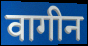
वागीन